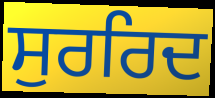
ਸੁਰਰਿਦ